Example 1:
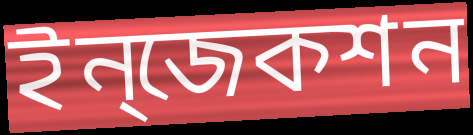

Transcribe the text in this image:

ইন্‌জেকশন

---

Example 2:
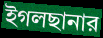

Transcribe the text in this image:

ইগলছানার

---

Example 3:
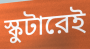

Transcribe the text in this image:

স্কুটারেই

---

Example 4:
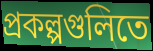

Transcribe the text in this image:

প্রকল্পগুলিতে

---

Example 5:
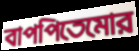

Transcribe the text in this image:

বাপপিতেমোর